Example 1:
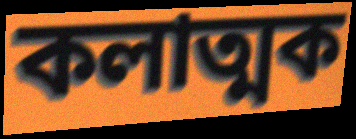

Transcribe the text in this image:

কলাত্মক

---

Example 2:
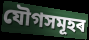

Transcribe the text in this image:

যৌগসমূহৰ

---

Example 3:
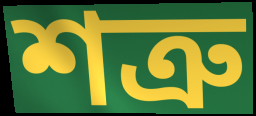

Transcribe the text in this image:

শত্ৰু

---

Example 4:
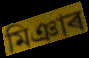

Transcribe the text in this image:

মিঞাৰ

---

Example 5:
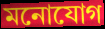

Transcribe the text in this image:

মনোযোগ